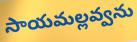
సాయమల్లవ్వను